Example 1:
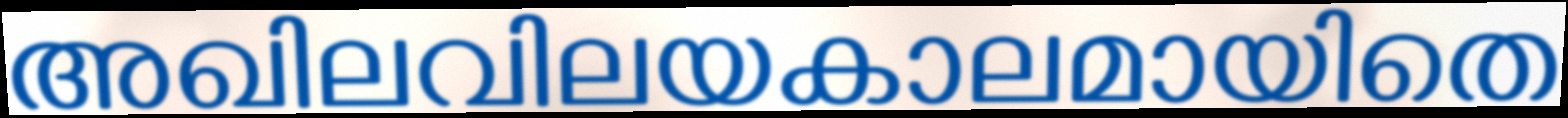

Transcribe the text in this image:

അഖിലവിലയകാലമായിതെ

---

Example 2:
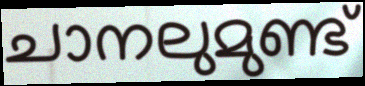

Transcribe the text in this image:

ചാനലുമുണ്ട്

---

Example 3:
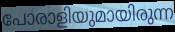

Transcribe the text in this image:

പോരാളിയുമായിരുന്ന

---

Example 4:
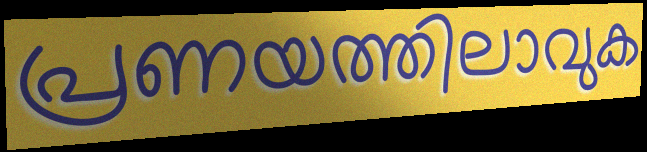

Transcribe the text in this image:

പ്രണയത്തിലാവുക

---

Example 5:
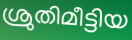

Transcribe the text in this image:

ശ്രുതിമീട്ടിയ